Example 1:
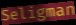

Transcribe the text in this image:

Seligman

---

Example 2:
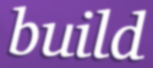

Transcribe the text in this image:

build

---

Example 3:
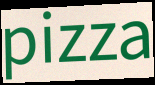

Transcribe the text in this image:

pizza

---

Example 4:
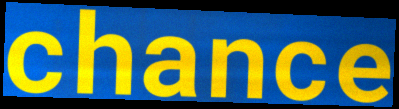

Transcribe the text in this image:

chance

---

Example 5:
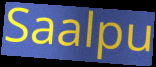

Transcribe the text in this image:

Saalpu